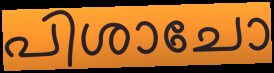
പിശാചോ